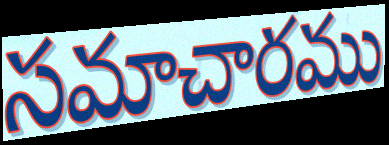
సమాచారము